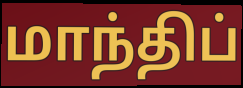
மாந்திப்